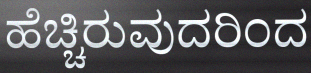
ಹೆಚ್ಚಿರುವುದರಿಂದ